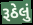
રૂઠેલું